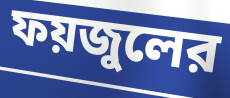
ফয়জুলের